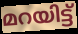
മറയിട്ട്